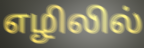
எழிலில்